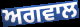
ਅਗਵਾਲ